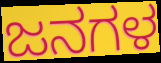
ಜನಗಳ